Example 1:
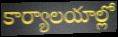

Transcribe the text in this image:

కార్యాలయాల్లో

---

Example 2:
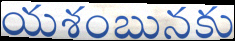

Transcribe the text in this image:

యశంబునకు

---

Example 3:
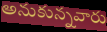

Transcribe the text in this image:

అనుకున్నవారు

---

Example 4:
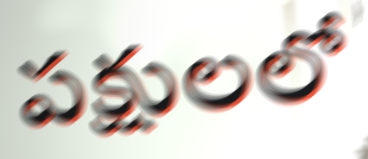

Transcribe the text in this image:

పక్షులలో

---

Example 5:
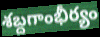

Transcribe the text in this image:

శబ్దగాంభీర్యం